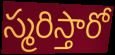
స్మరిస్తారో